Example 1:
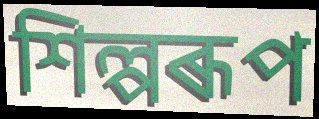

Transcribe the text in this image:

শিল্পৰূপ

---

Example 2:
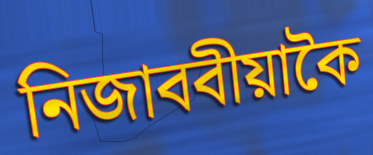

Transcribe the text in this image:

নিজাববীয়াকৈ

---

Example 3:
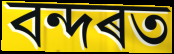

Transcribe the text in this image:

বন্দৰত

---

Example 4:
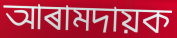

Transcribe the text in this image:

আৰামদায়ক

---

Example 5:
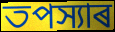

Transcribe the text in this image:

তপস্যাৰ